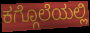
ಕಗ್ಗೊಲೆಯಲ್ಲಿ